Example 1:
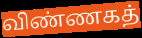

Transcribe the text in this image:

விண்ணகத்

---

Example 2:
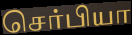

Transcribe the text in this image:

செர்பியா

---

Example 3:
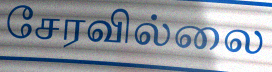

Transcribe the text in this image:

சேரவில்லை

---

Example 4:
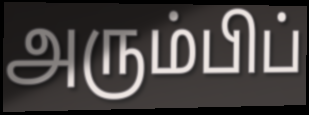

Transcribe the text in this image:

அரும்பிப்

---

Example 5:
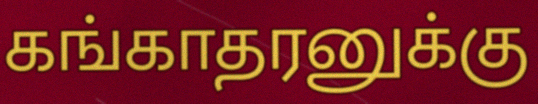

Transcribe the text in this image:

கங்காதரனுக்கு